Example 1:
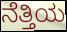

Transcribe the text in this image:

ನೆತ್ತಿಯ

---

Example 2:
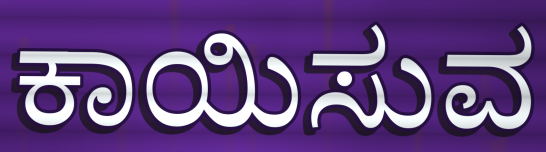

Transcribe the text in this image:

ಕಾಯಿಸುವ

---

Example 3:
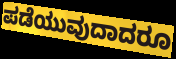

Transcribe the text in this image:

ಪಡೆಯುವುದಾದರೂ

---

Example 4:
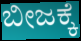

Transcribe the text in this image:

ಬೀಜಕ್ಕೆ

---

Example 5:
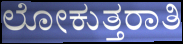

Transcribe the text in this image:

ಲೋಕುತ್ತರಾತಿ